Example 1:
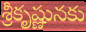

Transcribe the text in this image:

శ్రీకృష్ణునకు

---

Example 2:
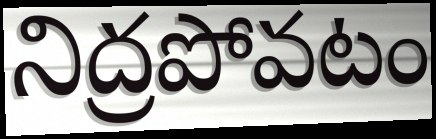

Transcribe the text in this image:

నిద్రపోవటం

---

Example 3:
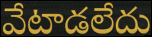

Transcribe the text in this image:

వేటాడలేదు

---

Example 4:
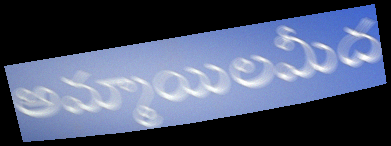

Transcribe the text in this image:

అమ్మాయిలమీద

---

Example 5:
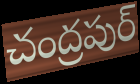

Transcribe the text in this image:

చంద్రపుర్